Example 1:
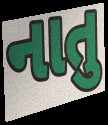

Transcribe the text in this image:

નાતુ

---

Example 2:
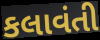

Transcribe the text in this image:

કલાવંતી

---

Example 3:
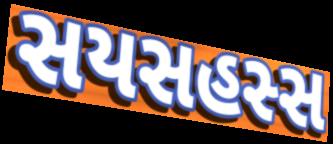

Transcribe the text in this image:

સયસહસ્સ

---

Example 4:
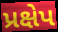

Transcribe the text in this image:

પ્રક્ષેપ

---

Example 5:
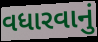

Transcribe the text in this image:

વધારવાનું